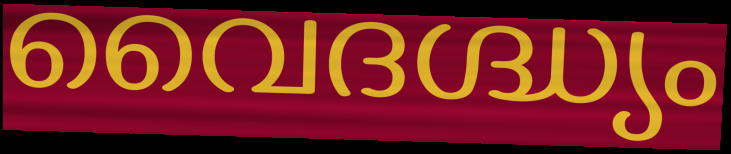
വൈദഗ്ദ്ധ്യം